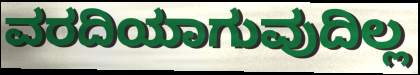
ವರದಿಯಾಗುವುದಿಲ್ಲ